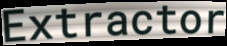
Extractor